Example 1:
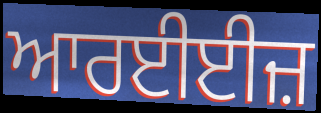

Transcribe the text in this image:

ਆਰਈਈਜ਼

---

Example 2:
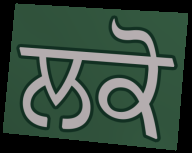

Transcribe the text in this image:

ਲਕੋ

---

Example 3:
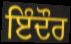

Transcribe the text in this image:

ਇੰਦੌਰ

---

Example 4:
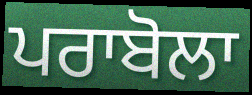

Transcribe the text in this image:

ਪਰਾਬੋਲਾ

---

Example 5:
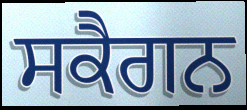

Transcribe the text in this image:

ਸਕੈਗਨ